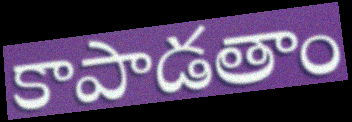
కాపాడతాం